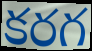
కరగ